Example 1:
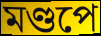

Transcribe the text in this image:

মণ্ডপে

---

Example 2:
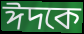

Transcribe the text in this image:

ঈদকে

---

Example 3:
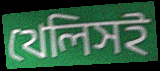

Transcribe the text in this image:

থেলিসই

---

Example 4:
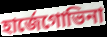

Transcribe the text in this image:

হার্জেগোভিনা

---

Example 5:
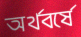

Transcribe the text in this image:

অর্থবর্ষে